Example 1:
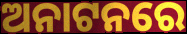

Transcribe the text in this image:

ଅନାଟନରେ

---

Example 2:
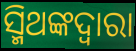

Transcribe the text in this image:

ସ୍ମିଥଙ୍କଦ୍ୱାରା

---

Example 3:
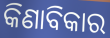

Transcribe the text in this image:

କିଣାବିକାର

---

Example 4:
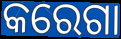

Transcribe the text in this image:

କରେଗା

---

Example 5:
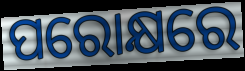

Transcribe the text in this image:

ପରୋକ୍ଷରେ